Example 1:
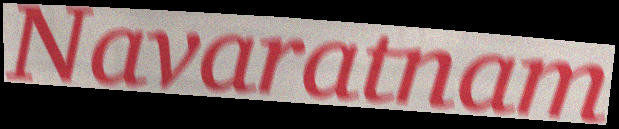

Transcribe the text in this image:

Navaratnam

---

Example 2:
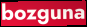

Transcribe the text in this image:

bozguna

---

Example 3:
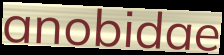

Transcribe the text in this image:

anobidae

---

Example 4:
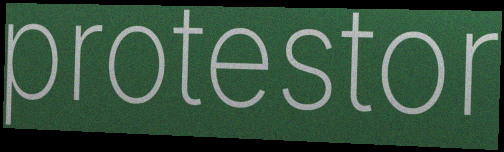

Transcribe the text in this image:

protestor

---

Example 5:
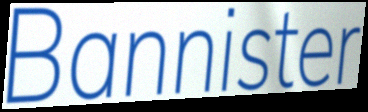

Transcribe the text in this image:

Bannister